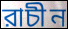
রাচীন